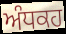
ਅੰਧਕਹ